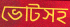
ভোটসহ